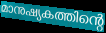
മാനുഷ്യകത്തിന്റെ